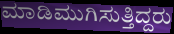
ಮಾಡಿಮುಗಿಸುತ್ತಿದ್ದರು